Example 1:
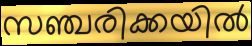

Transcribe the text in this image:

സഞ്ചരിക്കയിൽ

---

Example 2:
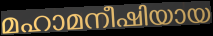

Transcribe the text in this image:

മഹാമനീഷിയായ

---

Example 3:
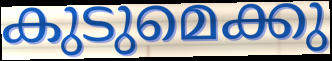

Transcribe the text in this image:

കുടുമെക്കു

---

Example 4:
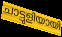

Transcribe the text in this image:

ചാട്ടുളിയായി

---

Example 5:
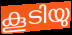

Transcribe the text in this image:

കൂടിയു